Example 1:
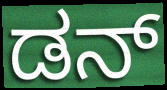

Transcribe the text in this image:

ಡನ್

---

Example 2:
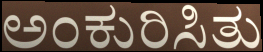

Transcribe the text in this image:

ಅಂಕುರಿಸಿತು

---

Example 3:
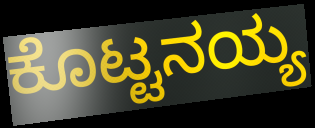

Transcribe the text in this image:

ಕೊಟ್ಟನಯ್ಯ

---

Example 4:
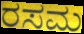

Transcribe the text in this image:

ರಸಮ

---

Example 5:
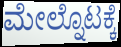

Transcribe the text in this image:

ಮೇಲ್ನೊಟಕ್ಕೆ